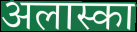
अलास्का